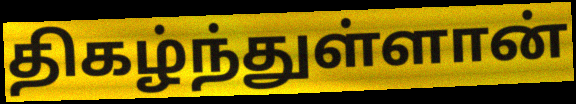
திகழ்ந்துள்ளான்